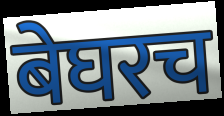
बेघरच